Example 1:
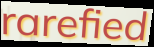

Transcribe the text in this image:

rarefied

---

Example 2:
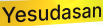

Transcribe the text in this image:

Yesudasan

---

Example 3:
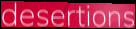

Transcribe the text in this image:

desertions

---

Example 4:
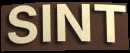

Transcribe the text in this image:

SINT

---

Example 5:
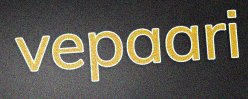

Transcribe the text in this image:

vepaari